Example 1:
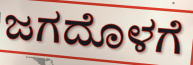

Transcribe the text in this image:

ಜಗದೊಳಗೆ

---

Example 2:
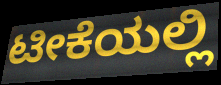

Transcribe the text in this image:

ಟೀಕೆಯಲ್ಲಿ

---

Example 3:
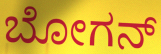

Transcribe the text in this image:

ಬೋಗನ್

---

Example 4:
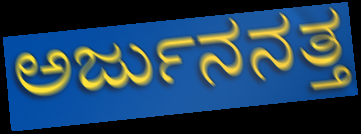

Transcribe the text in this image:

ಅರ್ಜುನನತ್ತ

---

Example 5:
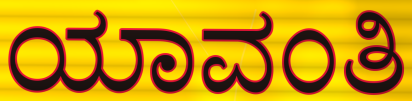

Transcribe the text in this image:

ಯಾವಂತಿ